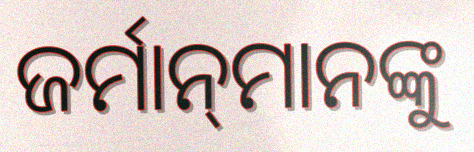
ଜର୍ମାନ୍‌ମାନଙ୍କୁ